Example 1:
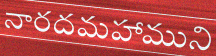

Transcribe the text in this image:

నారదమహాముని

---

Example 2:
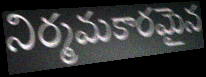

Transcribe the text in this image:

నిర్మమకారమైన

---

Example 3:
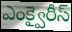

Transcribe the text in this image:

ఎంక్వైరీస్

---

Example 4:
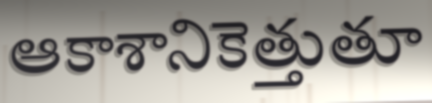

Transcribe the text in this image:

ఆకాశానికెత్తుతూ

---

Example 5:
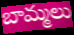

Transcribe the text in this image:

బామ్మలు